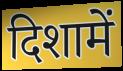
दिशामें